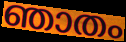
ഞാതം